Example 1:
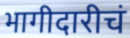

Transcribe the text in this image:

भागीदारीचं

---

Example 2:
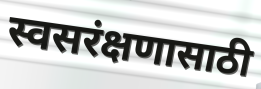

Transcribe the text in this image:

स्वसरंक्षणासाठी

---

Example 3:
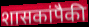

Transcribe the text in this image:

शासकांपैकी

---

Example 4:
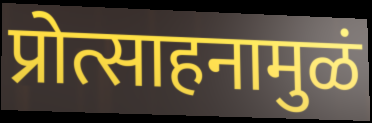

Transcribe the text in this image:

प्रोत्साहनामुळं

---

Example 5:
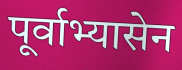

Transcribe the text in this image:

पूर्वाभ्यासेन